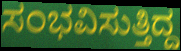
ಸಂಭವಿಸುತ್ತಿದ್ದ